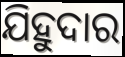
ଯିହୁଦାର